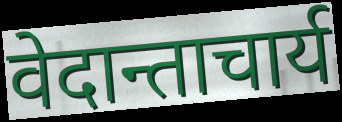
वेदान्ताचार्य